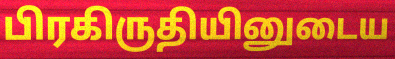
பிரகிருதியினுடைய